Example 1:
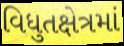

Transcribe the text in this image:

વિધુતક્ષેત્રમાં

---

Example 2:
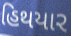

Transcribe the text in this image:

હિથયાર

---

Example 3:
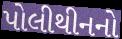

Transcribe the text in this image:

પોલીથીનનો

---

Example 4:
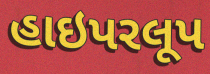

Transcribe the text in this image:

હાઇપરલૂપ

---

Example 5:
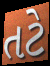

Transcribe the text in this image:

તટે